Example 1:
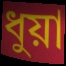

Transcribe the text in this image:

ধুয়া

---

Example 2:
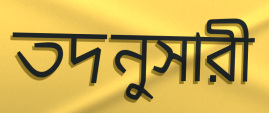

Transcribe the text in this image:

তদনুসারী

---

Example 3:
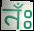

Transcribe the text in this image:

নঁঃ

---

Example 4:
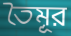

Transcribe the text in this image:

তৈমূর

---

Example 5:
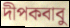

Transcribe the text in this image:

দীপকবাবু